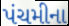
પંચમીના